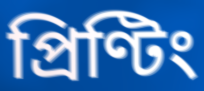
প্ৰিণ্টিং